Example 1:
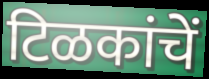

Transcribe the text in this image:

टिळकांचें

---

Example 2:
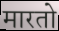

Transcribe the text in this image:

मारतो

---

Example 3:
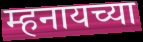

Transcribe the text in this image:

म्हनायच्या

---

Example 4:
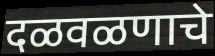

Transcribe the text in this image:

दळवळणाचे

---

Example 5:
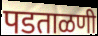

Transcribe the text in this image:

पडताळणी